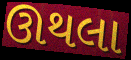
ઊથલા